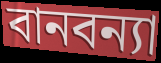
বানবন্যা